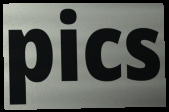
pics